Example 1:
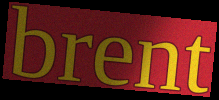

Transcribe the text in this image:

brent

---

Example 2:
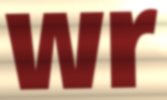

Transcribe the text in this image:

wr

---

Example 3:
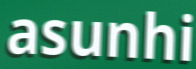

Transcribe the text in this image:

asunhi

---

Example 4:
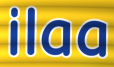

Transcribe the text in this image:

ilaa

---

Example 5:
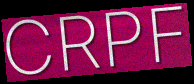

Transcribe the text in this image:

CRPF